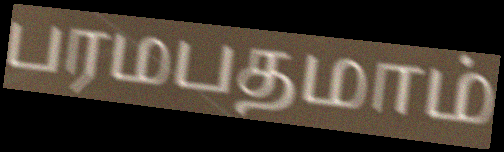
பரமபதமாம்